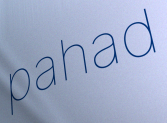
pahad